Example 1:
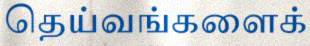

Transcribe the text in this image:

தெய்வங்களைக்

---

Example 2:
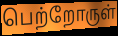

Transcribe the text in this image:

பெற்றோருள்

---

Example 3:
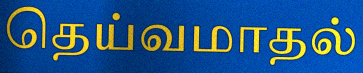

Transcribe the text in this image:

தெய்வமாதல்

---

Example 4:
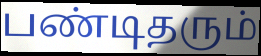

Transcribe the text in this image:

பண்டிதரும்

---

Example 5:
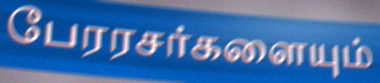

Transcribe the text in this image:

பேரரசர்களையும்